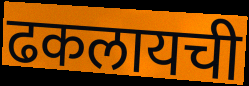
ढकलायची